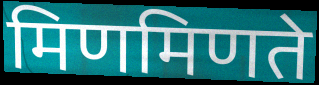
मिणमिणते